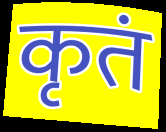
कृतं